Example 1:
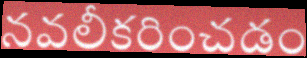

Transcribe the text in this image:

నవలీకరించడం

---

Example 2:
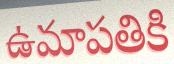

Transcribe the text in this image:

ఉమాపతికి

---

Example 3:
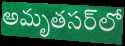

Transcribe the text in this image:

అమృతసర్‌లో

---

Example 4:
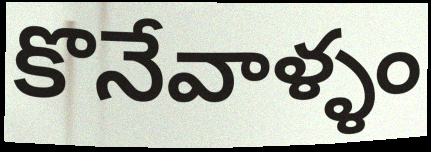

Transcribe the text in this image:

కొనేవాళ్ళం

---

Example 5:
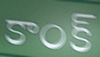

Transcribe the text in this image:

కాంక్